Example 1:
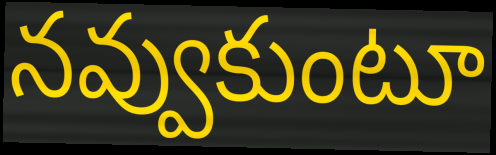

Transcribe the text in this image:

నవ్వుకుంటూ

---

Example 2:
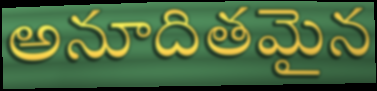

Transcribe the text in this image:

అనూదితమైన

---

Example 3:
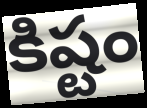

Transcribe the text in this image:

కిష్టం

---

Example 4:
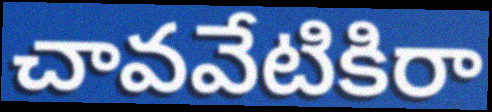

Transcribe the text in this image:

చావవేటికిరా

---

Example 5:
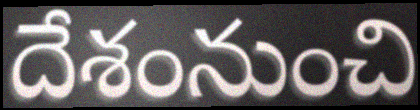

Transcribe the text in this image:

దేశంనుంచి